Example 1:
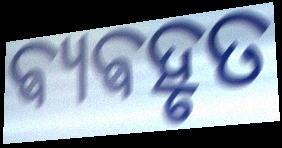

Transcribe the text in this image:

ଵ୍ଯଵହୃତ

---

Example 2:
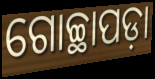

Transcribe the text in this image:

ଗୋଚ୍ଛାପଡ଼ା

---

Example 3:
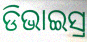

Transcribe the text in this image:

ଡିଭାଇସ୍ର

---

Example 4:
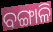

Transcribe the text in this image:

ବଙ୍ଗାଳି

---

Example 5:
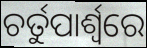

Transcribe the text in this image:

ଚର୍ତୁପାର୍ଶ୍ବରେ